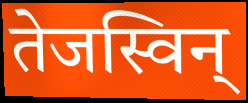
तेजस्विन्